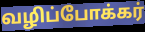
வழிப்போக்கர்